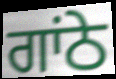
ਗਾਂਠੇ